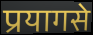
प्रयागसे